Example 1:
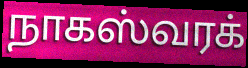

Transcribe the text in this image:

நாகஸ்வரக்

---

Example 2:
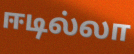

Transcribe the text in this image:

ஈடில்லா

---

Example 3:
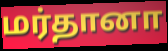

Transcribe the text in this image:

மர்தானா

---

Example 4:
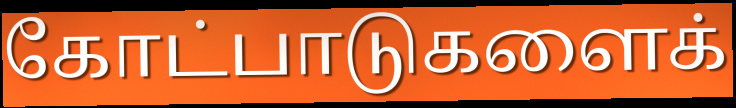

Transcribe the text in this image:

கோட்பாடுகளைக்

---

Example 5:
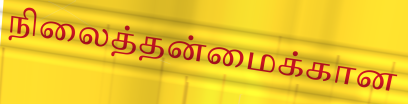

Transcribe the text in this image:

நிலைத்தன்மைக்கான